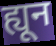
ह्यून